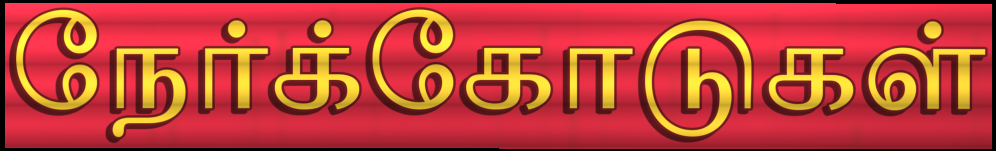
நேர்க்கோடுகள்